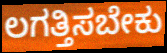
ಲಗತ್ತಿಸಬೇಕು